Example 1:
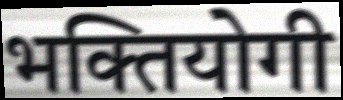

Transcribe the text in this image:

भक्तियोगी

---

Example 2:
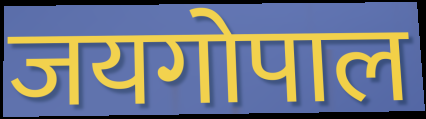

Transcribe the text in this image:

जयगोपाल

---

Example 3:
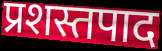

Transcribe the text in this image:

प्रशस्तपाद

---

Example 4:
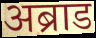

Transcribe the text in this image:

अब्राड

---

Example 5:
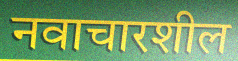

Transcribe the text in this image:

नवाचारशील